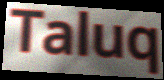
Taluq